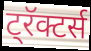
ट्रॅक्टर्स